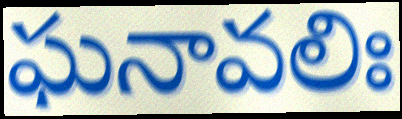
ఘనావలిః